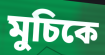
মুচিকে